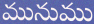
మునుము